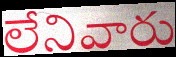
లేనివారు